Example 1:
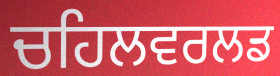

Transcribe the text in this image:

ਚਹਿਲਵਰਲਡ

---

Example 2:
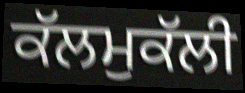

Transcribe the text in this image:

ਕੱਲਮੁਕੱਲੀ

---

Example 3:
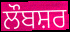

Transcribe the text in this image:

ਲੌਬਸ਼ਰ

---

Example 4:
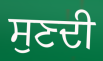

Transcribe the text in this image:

ਸੁਣਦੀ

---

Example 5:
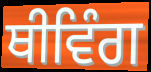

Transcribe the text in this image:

ਥੀਵਿੰਗ